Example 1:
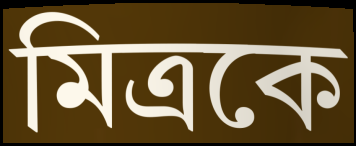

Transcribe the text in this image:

মিত্রকে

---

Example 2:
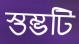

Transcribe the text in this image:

স্তম্ভটি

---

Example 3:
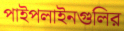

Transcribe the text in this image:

পাইপলাইনগুলির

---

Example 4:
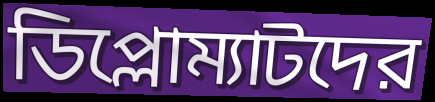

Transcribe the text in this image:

ডিপ্লোম্যাটদের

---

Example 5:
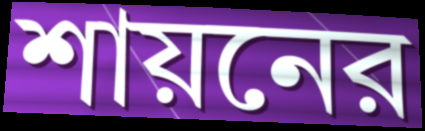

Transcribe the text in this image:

শায়নের